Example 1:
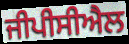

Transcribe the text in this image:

ਜੀਪੀਸੀਐਲ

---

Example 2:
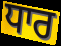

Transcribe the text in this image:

ਧਾਰ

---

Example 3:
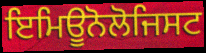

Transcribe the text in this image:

ਇਮਿਊਨੋਲੋਜਿਸਟ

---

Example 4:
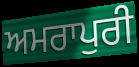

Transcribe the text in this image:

ਅਮਰਾਪੁਰੀ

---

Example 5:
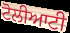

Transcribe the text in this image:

ਟੋਲੀਆਟੀ